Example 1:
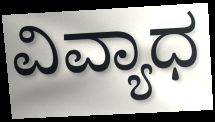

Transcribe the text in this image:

ವಿವ್ಯಾಧ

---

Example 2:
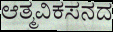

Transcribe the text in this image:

ಆತ್ಮವಿಕಸನದ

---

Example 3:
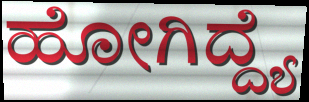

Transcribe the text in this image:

ಹೋಗಿದ್ದ್ಯೆ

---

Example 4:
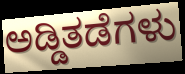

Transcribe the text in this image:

ಅಡ್ಡಿತಡೆಗಳು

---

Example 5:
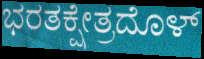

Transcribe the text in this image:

ಭರತಕ್ಷೇತ್ರದೊಳ್